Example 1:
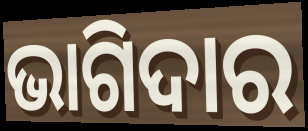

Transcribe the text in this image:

ଭାଗିଦାର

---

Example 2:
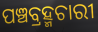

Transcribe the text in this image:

ପଞ୍ଚବ୍ରହ୍ମଚାରୀ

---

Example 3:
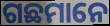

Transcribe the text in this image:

ଗଛମାନେ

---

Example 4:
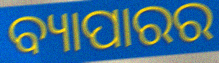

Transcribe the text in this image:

ବ୍ୟାପାରର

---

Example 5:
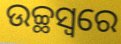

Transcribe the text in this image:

ଉଚ୍ଛସ୍ୱରେ